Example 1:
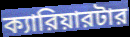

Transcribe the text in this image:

ক্যারিয়ারটার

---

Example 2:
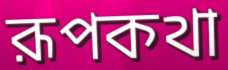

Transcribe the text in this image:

রূপকথা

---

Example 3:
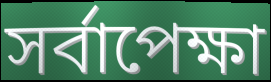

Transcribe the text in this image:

সর্বাপেক্ষা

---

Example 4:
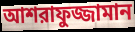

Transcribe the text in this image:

আশরাফুজ্জামান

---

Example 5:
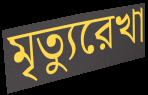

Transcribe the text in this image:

মৃত্যুরেখা